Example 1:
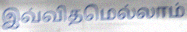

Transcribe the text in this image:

இவ்விதமெல்லாம்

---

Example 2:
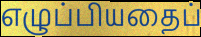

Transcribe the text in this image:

எழுப்பியதைப்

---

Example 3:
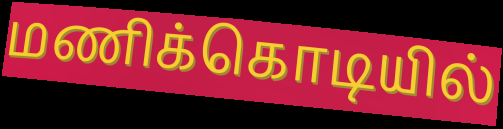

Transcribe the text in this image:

மணிக்கொடியில்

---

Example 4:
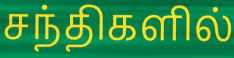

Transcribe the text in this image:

சந்திகளில்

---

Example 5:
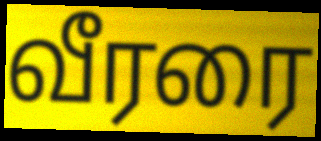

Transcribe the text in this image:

வீரரை